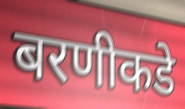
बरणीकडे